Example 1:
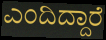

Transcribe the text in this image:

ಎಂದಿದ್ದಾರೆ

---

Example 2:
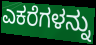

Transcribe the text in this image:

ಎಕರೆಗಳನ್ನು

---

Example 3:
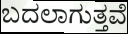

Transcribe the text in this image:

ಬದಲಾಗುತ್ತವೆ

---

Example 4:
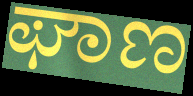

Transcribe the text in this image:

ಘಾಣ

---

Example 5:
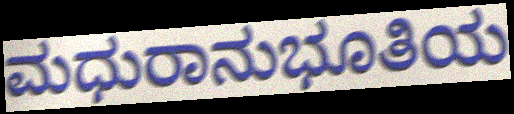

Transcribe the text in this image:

ಮಧುರಾನುಭೂತಿಯ